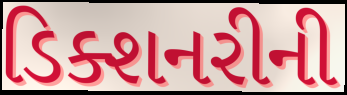
ડિક્શનરીની